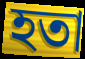
হতা